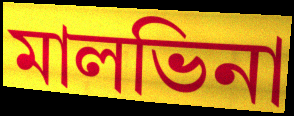
মালভিনা